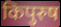
किपुरुष